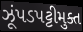
ઝૂંપડપટ્ટીમુક્ત